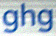
ghg